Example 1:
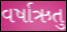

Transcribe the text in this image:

વર્ષાઋતુ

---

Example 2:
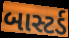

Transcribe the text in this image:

બાસ્ટર્ડ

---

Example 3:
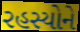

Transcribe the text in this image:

રહસ્યોને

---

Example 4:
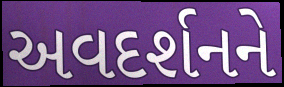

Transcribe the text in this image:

અવદર્શનને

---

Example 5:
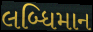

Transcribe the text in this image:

લબ્ધિમાન